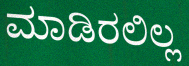
ಮಾಡಿರಲಿಲ್ಲ